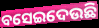
ବସେଇଦେଉଛି